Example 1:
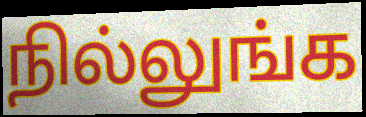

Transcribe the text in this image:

நில்லுங்க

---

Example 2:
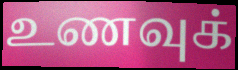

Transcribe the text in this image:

உணவுக்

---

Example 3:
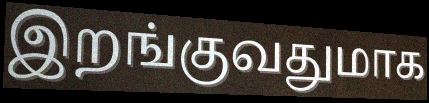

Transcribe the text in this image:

இறங்குவதுமாக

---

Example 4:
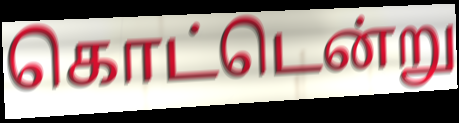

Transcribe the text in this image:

கொட்டென்று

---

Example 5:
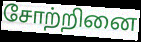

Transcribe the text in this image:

சோற்றினை